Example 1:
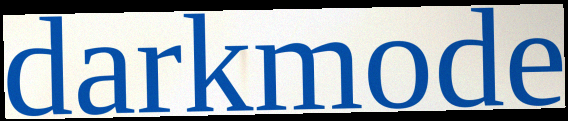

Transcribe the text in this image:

darkmode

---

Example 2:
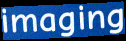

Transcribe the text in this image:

imaging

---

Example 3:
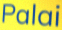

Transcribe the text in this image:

Palai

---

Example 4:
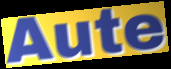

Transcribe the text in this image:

Aute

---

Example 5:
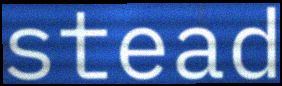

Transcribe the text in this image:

stead